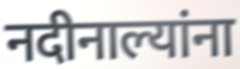
नदीनाल्यांना